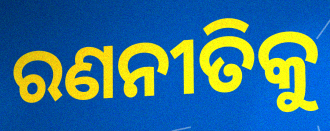
ରଣନୀତିକୁ